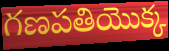
గణపతియొక్క